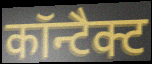
कॉन्टैक्ट